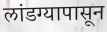
लांडग्यापासून